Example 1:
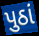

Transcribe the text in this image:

પુઠાં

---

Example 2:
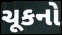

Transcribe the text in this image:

ચૂકનો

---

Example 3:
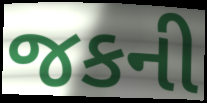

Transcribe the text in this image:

જકની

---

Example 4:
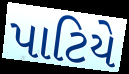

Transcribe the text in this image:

પાટિયે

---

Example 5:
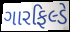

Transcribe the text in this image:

ગારફિલ્ડે